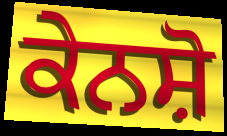
ਕੇਨਸ਼ੋ